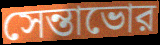
সেন্তাভোর